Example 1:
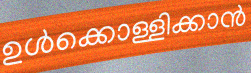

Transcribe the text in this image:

ഉൾക്കൊള്ളിക്കാൻ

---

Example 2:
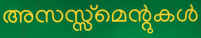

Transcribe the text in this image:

അസസ്സ്മെന്റുകൾ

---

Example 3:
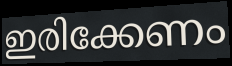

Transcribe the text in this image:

ഇരിക്കേണം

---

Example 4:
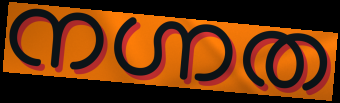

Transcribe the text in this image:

നഗ്നത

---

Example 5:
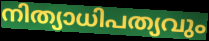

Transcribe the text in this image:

നിത്യാധിപത്യവും